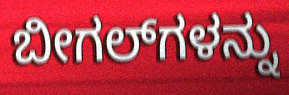
ಬೀಗಲ್‌ಗಳನ್ನು